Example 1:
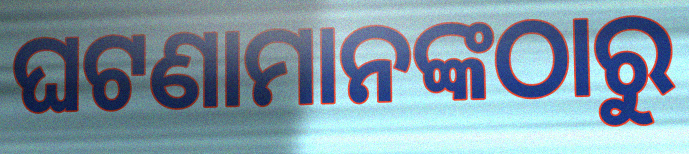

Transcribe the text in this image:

ଘଟଣାମାନଙ୍କଠାରୁ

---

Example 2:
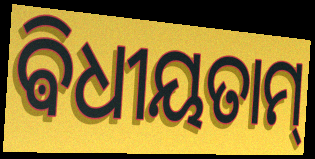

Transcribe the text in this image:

ଵିଧୀୟତାମ୍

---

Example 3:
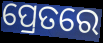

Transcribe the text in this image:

ପ୍ରେତରେ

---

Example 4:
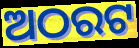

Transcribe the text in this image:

ଅଠରଟ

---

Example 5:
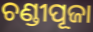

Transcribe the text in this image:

ଚଣ୍ଡୀପୂଜା